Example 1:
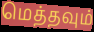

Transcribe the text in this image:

மெத்தவும்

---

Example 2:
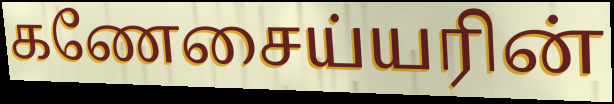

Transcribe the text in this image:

கணேசைய்யரின்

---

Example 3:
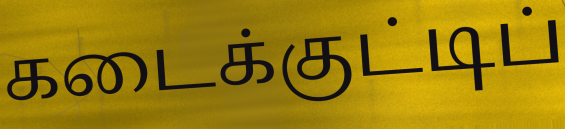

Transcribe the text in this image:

கடைக்குட்டிப்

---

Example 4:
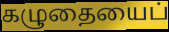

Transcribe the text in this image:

கழுதையைப்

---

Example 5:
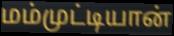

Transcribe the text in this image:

மம்முட்டியான்